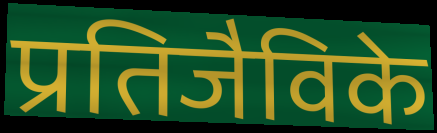
प्रतिजैविके